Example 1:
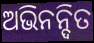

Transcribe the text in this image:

ଅଭିନନ୍ଦିତ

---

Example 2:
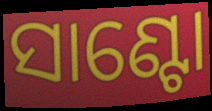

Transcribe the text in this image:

ସାଣ୍ଟୋ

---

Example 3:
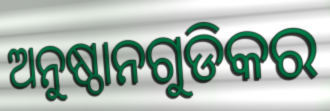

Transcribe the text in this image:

ଅନୁଷ୍ଠାନଗୁଡିକର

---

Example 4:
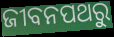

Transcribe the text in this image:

ଜୀବନପଥରୁ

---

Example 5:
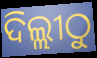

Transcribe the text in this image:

ଦିଲ୍ଲୀଠୁ